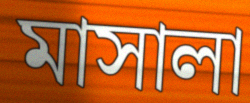
মাসালা